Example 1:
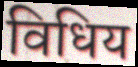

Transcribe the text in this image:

विधिय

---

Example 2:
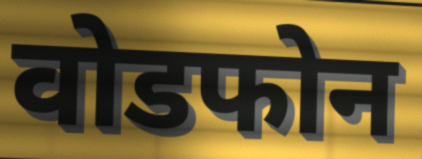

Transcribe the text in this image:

वोडफोन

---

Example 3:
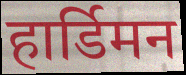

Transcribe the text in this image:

हार्डिमन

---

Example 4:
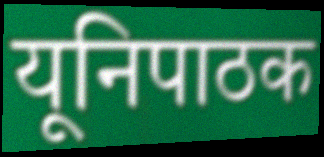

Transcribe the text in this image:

यूनिपाठक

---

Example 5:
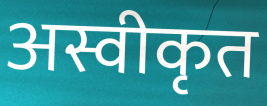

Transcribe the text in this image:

अस्‍वीकृत